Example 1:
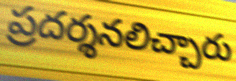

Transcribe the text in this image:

ప్రదర్శనలిచ్చారు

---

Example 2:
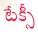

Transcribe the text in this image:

టేక్సీ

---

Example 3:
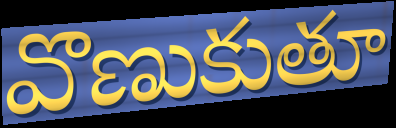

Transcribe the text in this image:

వొణుకుతూ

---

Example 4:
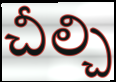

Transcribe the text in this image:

చీల్చి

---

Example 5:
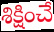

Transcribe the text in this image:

శిక్షించే